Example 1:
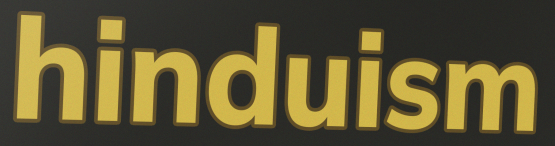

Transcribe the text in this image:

hinduism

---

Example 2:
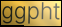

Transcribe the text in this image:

ggpht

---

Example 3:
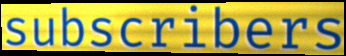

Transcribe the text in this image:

subscribers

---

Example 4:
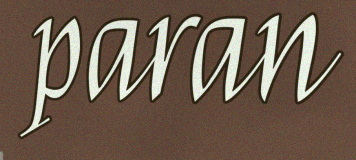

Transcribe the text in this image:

paran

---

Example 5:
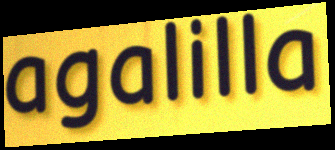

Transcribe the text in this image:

agalilla